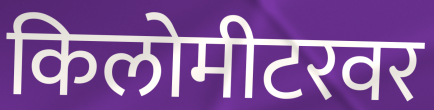
किलोमीटरवर